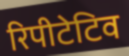
रिपीटेटिव